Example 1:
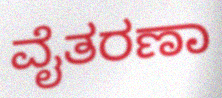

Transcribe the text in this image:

ವೈತರಣಾ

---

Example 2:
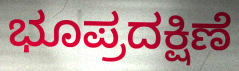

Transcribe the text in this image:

ಭೂಪ್ರದಕ್ಷಿಣೆ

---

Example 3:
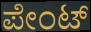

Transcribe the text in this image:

ಪೇಂಟ್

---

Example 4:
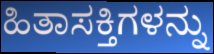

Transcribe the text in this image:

ಹಿತಾಸಕ್ತಿಗಳನ್ನು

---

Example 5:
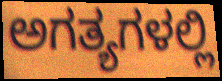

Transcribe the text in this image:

ಅಗತ್ಯಗಳಲ್ಲಿ